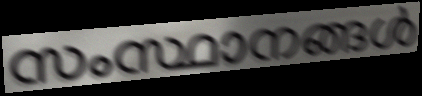
സംസ്ഥാനങ്ങൾ